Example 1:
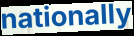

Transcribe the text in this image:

nationally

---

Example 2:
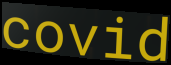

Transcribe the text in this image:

covid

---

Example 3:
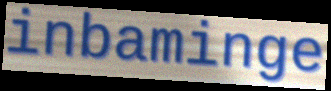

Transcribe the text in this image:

inbaminge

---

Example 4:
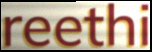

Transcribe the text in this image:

reethi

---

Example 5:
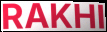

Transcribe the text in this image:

RAKHI